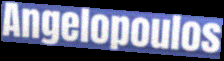
Angelopoulos